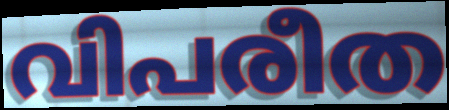
വിപരീത